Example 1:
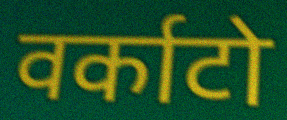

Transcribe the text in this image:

वर्काटो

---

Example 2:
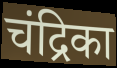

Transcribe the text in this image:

चंद्रिका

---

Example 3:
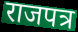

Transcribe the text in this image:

राजपत्र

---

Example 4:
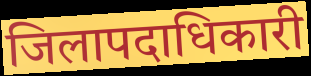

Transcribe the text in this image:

जिलापदाधिकारी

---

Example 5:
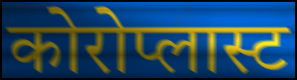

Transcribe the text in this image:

कोरोप्लास्ट